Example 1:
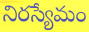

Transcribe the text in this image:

నిరస్యేమం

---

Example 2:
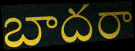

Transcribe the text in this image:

బాదరా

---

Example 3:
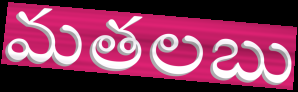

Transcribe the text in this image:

మతలబు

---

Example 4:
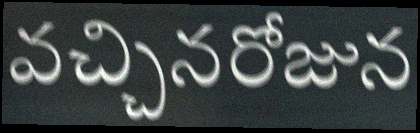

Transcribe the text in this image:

వచ్చినరోజున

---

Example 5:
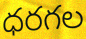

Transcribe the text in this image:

ధరగల